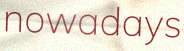
nowadays